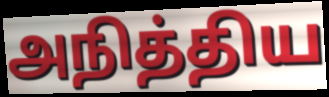
அநித்திய